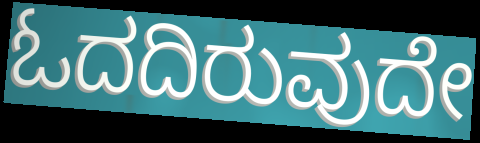
ಓದದಿರುವುದೇ